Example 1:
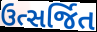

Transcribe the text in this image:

ઉત્સર્જિત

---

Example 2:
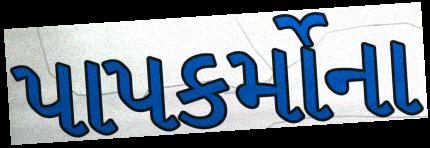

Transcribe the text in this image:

પાપકર્મોના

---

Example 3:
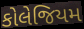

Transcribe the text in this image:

કોલેજિયમ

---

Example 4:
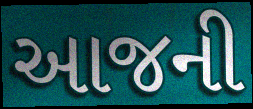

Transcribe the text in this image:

આજની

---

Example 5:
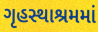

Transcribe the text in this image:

ગૃહસ્થાશ્રમમાં